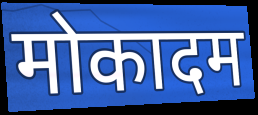
मोकादम